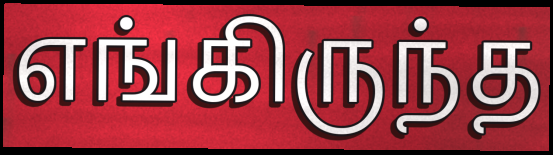
எங்கிருந்த